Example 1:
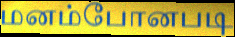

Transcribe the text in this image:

மனம்போனபடி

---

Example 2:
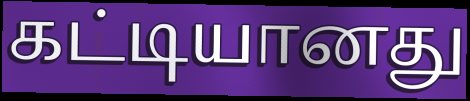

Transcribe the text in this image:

கட்டியானது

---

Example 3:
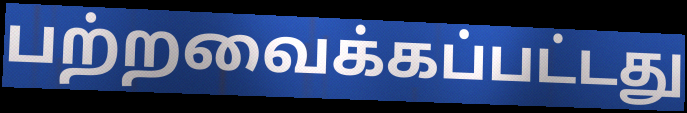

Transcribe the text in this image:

பற்றவைக்கப்பட்டது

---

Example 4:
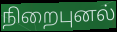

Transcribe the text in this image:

நிறைபுனல்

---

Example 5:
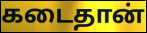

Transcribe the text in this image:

கடைதான்